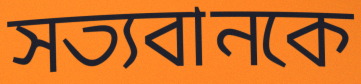
সত্যবানকে